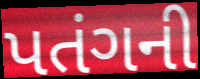
પતંગની